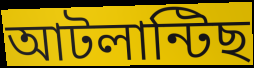
আটলান্টিছ